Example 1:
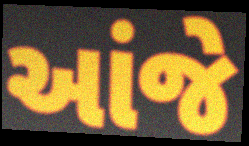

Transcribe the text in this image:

આંજે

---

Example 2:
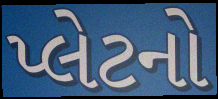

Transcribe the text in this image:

પ્લેટનો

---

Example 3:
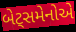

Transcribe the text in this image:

બેટ્સમેનોએ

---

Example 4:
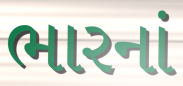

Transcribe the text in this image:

ભારનાં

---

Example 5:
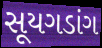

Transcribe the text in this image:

સૂયગડાંગ